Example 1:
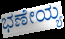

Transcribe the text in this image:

ಭಣೇಯ್ಯ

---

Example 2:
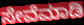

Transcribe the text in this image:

ಸೇವೆಮಾಡಿ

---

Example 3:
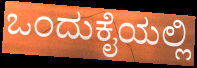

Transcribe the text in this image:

ಒಂದುಕೈಯಲ್ಲಿ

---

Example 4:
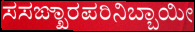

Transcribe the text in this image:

ಸಸಙ್ಖಾರಪರಿನಿಬ್ಬಾಯೀ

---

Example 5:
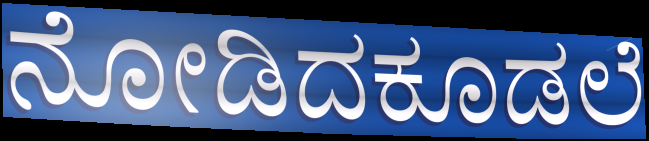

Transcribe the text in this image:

ನೋಡಿದಕೂಡಲೆ